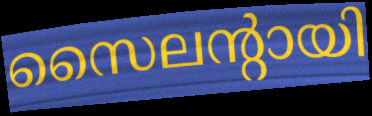
സൈലന്റായി